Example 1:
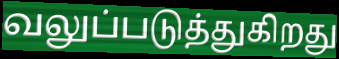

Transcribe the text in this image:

வலுப்படுத்துகிறது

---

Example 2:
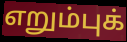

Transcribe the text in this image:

எறும்புக்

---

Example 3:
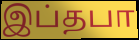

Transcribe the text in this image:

இப்தபா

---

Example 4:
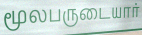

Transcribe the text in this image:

மூலபருடையார்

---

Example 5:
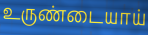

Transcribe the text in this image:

உருண்டையாய்